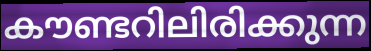
കൗണ്ടറിലിരിക്കുന്ന